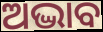
ଅଦ୍ଭାବ